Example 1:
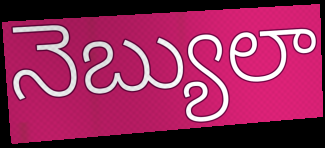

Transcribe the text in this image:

నెబ్యులా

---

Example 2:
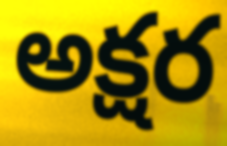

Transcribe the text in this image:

అక్షర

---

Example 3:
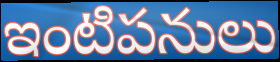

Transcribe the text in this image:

ఇంటిపనులు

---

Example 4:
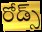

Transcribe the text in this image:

రోడ్స్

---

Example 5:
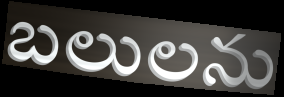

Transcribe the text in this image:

బలులను